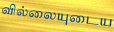
வில்லையுடைய